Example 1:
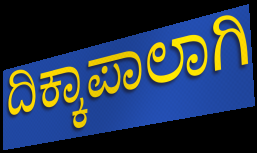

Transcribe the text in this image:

ದಿಕ್ಕಾಪಾಲಾಗಿ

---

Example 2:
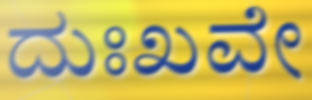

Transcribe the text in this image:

ದುಃಖವೇ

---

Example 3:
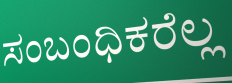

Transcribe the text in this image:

ಸಂಬಂಧಿಕರೆಲ್ಲ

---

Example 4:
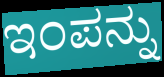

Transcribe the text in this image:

ಇಂಪನ್ನು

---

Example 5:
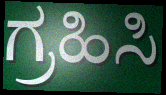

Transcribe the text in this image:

ಗ್ರಹಿಸಿ